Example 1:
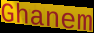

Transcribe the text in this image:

Ghanem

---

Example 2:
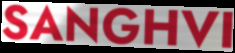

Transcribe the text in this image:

SANGHVI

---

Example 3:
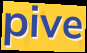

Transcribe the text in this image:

pive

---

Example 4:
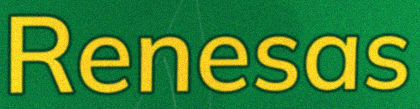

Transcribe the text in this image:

Renesas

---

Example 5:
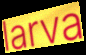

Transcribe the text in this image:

larva